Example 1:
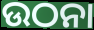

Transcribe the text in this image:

ଉଠନା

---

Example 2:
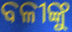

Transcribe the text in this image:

ବଳୀଙ୍କୁ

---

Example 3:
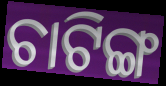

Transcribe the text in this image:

ଚାଟିଙ୍ଗ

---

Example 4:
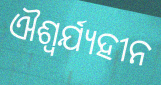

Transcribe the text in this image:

ଐଶ୍ୱର୍ଯ୍ୟହୀନ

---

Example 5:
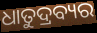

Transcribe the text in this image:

ଧାତୁଦ୍ରବ୍ୟର